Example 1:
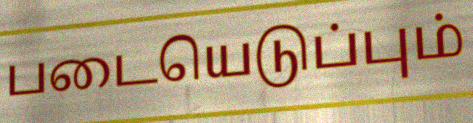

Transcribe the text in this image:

படையெடுப்பும்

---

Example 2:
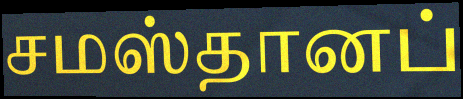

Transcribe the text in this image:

சமஸ்தானப்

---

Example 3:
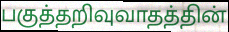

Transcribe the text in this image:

பகுத்தறிவுவாதத்தின்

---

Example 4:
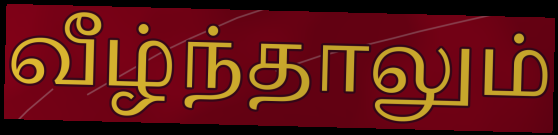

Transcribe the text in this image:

வீழ்ந்தாலும்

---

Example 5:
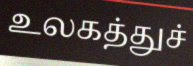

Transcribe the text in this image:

உலகத்துச்